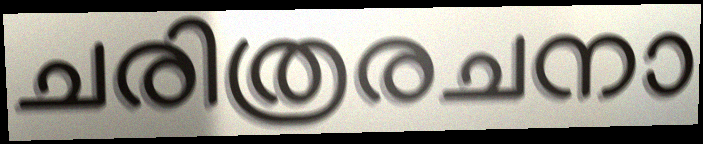
ചരിത്രരചനാ